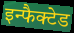
इन्फैक्टेड